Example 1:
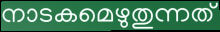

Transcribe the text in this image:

നാടകമെഴുതുന്നത്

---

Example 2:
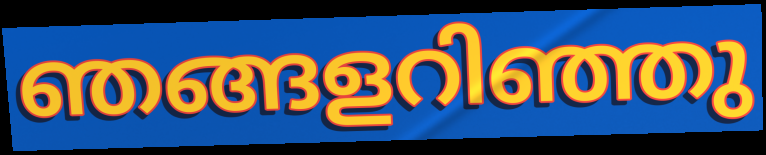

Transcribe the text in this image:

ഞങ്ങളറിഞ്ഞു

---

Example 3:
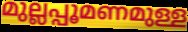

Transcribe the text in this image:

മുല്ലപ്പൂമണമുള്ള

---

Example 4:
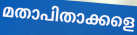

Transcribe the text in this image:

മതാപിതാക്കളെ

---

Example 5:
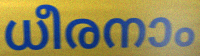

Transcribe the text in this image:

ധീരനാം